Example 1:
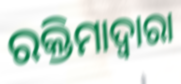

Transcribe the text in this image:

ରକ୍ତିମାଦ୍ୱାରା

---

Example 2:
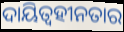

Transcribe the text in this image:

ଦାୟିତ୍ଵହୀନତାର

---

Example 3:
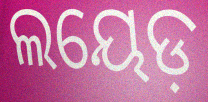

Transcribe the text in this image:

ଲୟେଡ଼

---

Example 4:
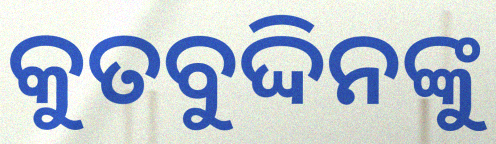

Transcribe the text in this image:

କୁତବୁଦ୍ଦିନଙ୍କୁ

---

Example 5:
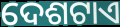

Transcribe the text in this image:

ଦେଶଟାଏ